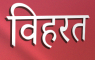
विहरत